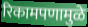
रिकामपणामुळे